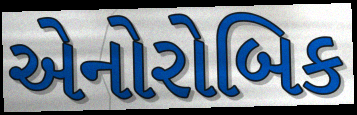
એનોરોબિક